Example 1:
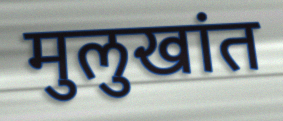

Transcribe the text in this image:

मुलुखांत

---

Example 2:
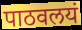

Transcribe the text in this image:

पाठवलयं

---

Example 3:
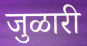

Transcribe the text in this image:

जुळारी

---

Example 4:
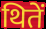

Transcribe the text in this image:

थितें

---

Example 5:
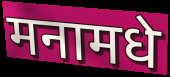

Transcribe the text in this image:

मनामधे